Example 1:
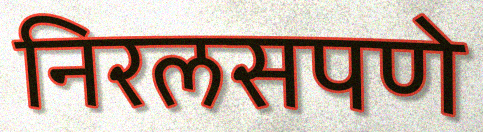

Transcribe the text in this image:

निरलसपणे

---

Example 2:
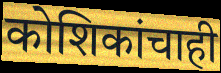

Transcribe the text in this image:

कोशिकांचाही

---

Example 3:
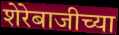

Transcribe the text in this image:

शेरेबाजीच्या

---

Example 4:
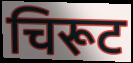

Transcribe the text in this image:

चिरूट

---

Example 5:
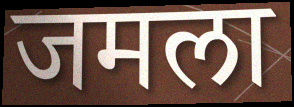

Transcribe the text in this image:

जमला